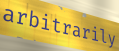
arbitrarily